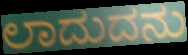
ಲಾದುದನು